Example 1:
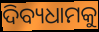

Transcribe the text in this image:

ଦିବ୍ୟଧାମକୁ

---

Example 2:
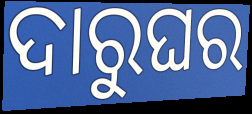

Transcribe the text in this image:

ଦାରୁଘର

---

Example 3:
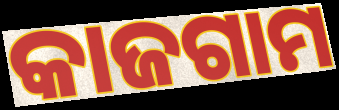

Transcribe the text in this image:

କାଜଗାମ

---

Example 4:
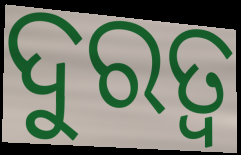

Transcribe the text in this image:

ଦୁରତ୍ଵ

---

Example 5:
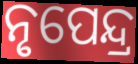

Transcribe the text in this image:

ନୃପେନ୍ଦ୍ର